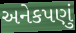
અનેકપણું